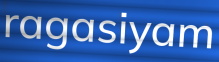
ragasiyam